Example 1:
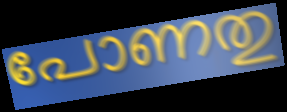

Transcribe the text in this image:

പോണതു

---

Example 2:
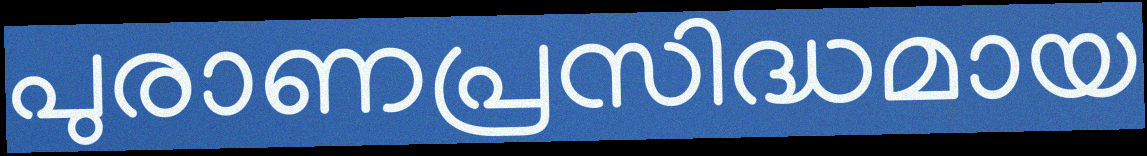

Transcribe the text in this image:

പുരാണപ്രസിദ്ധമായ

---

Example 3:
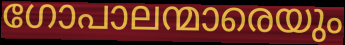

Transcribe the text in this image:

ഗോപാലന്മാരെയും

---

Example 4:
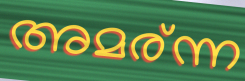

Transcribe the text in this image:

അമര്ന്ന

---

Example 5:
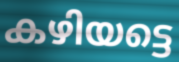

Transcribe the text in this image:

കഴിയട്ടെ